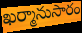
ఖర్మానుసారం